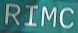
RIMC